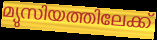
മ്യുസിയത്തിലേക്ക്